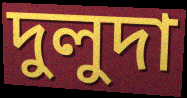
দুলুদা